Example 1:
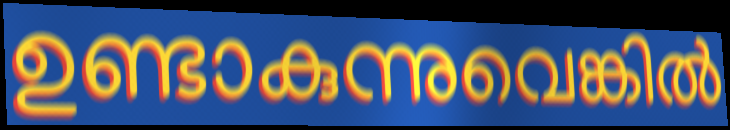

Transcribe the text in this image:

ഉണ്ടാകുന്നുവെങ്കിൽ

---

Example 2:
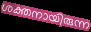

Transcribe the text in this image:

ശക്തനായിരുന്ന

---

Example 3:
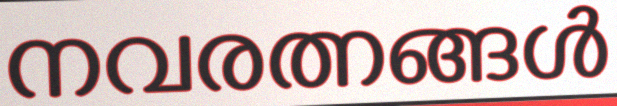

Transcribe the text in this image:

നവരത്നങ്ങൾ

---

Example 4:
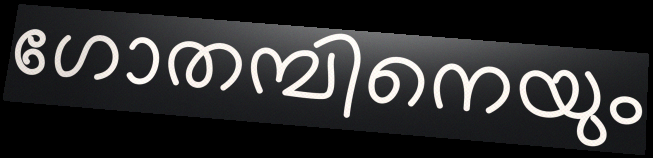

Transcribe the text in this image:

ഗോതമ്പിനെയും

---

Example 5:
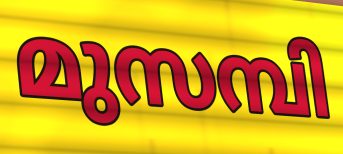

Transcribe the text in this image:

മുസമ്പി